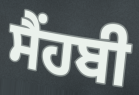
ਸੈਂਹਬੀ